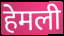
हेमली